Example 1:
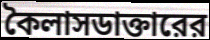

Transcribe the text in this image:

কৈলাসডাক্তারের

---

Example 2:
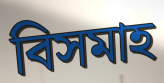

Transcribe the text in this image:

বিসমাহ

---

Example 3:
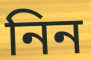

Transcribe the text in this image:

নিন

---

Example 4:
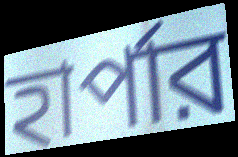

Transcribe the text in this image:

হার্পার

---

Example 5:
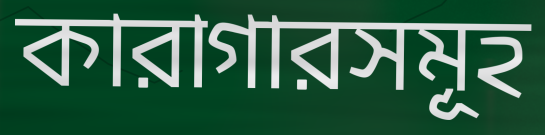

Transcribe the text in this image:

কারাগারসমূহ